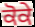
ਕੋਕੇ